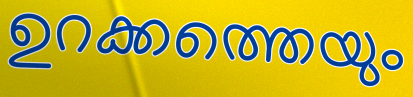
ഉറക്കത്തെയും